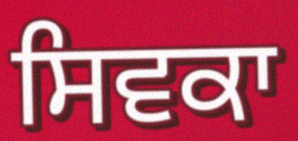
ਸਿਵਕਾ